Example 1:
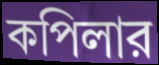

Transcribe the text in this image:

কপিলার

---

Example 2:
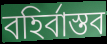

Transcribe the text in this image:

বহির্বাস্তব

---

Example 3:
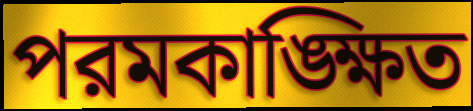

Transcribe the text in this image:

পরমকাঙ্ক্ষিত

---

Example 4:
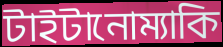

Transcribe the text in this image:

টাইটানোম্যাকি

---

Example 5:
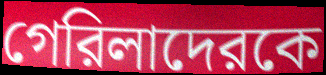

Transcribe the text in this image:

গেরিলাদেরকে